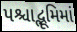
પશ્ચાદ્ભૂમિમાં